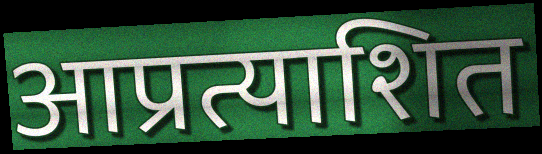
आप्रत्याशित